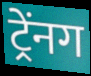
ट्र्रेंनग